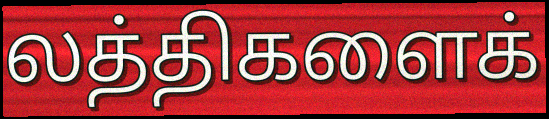
லத்திகளைக்